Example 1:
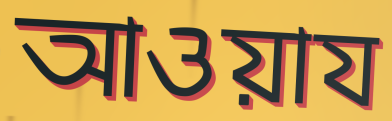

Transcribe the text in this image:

আওয়ায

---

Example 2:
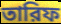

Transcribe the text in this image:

তারিফ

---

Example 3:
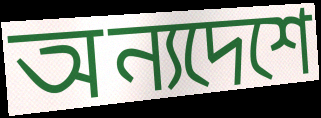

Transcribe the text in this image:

অন্যদেশে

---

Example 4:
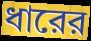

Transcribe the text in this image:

ধারের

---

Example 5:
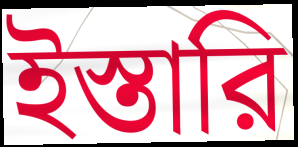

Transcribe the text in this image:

ইস্তারি